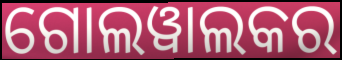
ଗୋଲୱାଲକର